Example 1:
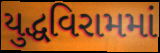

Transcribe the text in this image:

યુદ્ધવિરામમાં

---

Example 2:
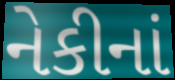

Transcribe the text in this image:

નેકીનાં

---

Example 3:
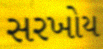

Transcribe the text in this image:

સરખોય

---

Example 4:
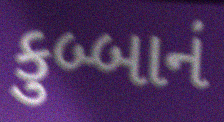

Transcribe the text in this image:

કુબ્બાનં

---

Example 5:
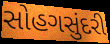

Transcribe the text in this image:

સોહગસુંદરી